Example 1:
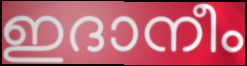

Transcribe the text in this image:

ഇദാനീം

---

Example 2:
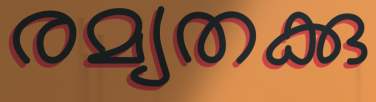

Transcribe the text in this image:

രമ്യതക്കു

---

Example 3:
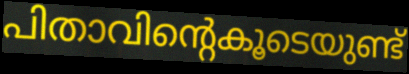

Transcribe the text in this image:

പിതാവിന്റെകൂടെയുണ്ട്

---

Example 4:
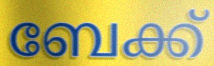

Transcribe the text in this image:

ബേക്ക്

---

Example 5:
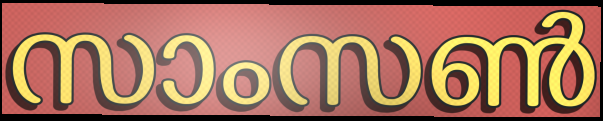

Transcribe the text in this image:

സാംസൺ